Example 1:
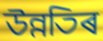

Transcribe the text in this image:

উন্নতিৰ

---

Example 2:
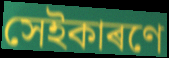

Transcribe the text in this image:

সেইকাৰণে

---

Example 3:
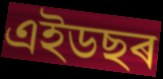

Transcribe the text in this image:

এইডছৰ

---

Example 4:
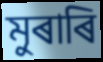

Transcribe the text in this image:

মুৰাৰি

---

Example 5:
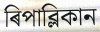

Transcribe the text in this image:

ৰিপাব্লিকান